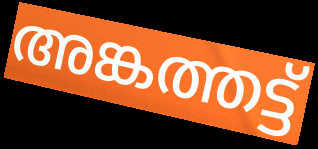
അങ്കത്തട്ട്